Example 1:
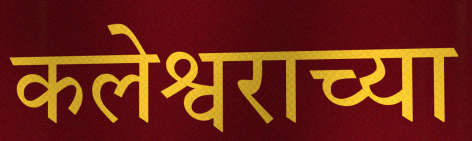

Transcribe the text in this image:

कलेश्वराच्या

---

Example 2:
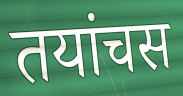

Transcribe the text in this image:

तयांचस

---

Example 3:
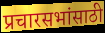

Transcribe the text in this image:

प्रचारसभांसाठी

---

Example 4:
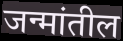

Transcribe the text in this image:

जन्मांतील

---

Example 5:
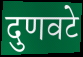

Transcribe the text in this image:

दुणवटे